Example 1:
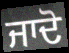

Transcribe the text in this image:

ਜਾਦੋ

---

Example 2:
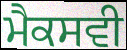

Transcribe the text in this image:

ਮੈਕਸਵੀ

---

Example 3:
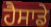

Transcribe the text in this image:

ਹੈਸਾਡੇ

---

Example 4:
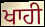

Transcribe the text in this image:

ਖਾਹੀ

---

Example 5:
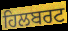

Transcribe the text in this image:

ਹਿਲਬਰਟ